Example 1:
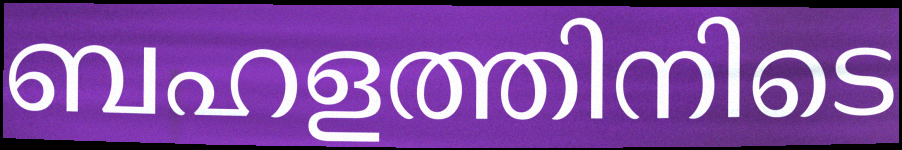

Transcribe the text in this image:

ബഹളത്തിനിടെ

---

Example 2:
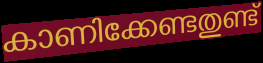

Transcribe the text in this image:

കാണിക്കേണ്ടതുണ്ട്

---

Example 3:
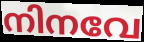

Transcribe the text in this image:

നിനവേ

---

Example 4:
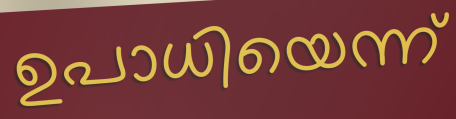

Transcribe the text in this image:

ഉപാധിയെന്ന്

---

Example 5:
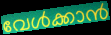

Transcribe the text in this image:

വേൾക്കാൻ